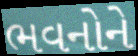
ભવનોને